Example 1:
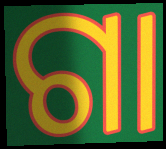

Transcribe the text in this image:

ଗା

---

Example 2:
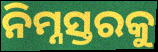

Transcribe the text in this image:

ନିମ୍ନସ୍ତରକୁ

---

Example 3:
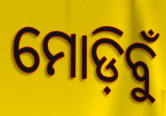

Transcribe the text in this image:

ମୋଡ଼ିବୁଁ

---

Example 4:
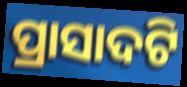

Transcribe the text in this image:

ପ୍ରାସାଦଟି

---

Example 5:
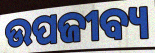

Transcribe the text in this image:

ଉପଜୀବ୍ୟ